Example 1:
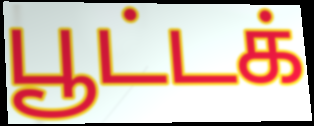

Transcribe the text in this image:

பூட்டக்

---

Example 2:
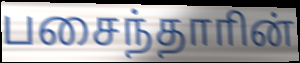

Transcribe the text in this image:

பசைந்தாரின்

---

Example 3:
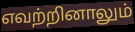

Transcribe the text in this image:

எவற்றினாலும்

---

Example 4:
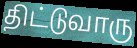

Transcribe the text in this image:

திட்டுவாரு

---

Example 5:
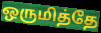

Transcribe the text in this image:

ஒருமித்தே